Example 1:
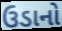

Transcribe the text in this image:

ઉડાનો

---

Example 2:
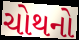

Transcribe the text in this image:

ચોથનો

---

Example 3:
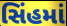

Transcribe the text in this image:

સિંહમાં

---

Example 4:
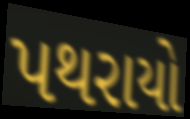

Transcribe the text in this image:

પથરાયો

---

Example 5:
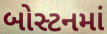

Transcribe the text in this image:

બોસ્ટનમાં